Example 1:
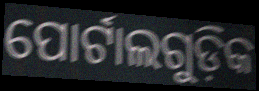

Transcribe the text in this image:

ପୋର୍ଟାଲଗୁଡ଼ିକ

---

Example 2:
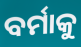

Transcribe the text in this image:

ବର୍ମାକୁ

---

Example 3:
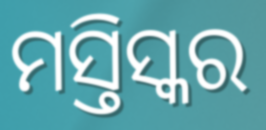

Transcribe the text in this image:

ମସ୍ତିସ୍କର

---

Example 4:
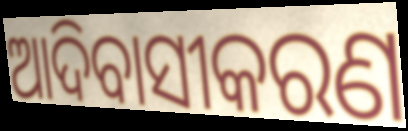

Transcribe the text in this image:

ଆଦିବାସୀକରଣ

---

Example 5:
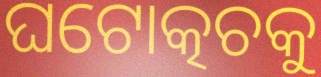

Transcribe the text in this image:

ଘଟୋତ୍କଚକୁ